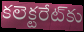
కలెక్టరేట్‌కు